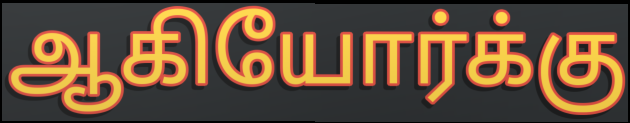
ஆகியோர்க்கு